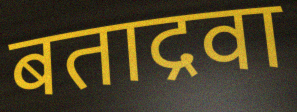
बताद्रवा